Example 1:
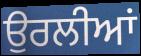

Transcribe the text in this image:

ਉਰਲੀਆਂ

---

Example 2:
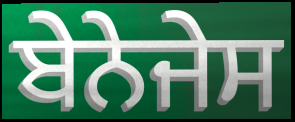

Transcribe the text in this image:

ਬੇਨੇਜੇਸ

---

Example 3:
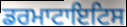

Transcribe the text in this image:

ਡਰਮਾਟਾਇਟਿਸ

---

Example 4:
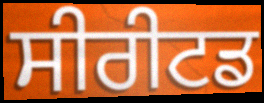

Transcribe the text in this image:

ਸੀਰੀਟਡ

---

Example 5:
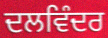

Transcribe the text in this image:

ਦਲਵਿੰਦਰ